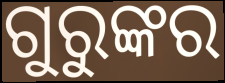
ଗୁରୁଙ୍କର